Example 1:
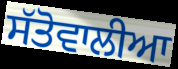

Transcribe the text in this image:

ਸੱਤੋਵਾਲੀਆ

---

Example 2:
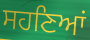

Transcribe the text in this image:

ਸਹਣਿਆਂ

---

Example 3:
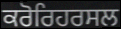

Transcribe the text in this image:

ਕਰੋਰਿਹਰਸਲ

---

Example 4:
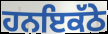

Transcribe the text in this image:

ਹਨਇਕੱਠੇ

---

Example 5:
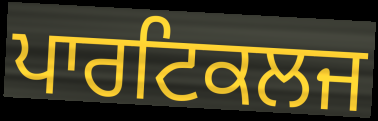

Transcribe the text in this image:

ਪਾਰਟਿਕਲਜ